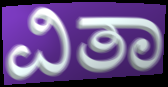
ವಿತಾ